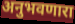
अनुभवणारा